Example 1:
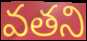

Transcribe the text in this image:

వతని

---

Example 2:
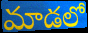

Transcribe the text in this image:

మాడలో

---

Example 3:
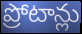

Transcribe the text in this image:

ప్రోటాన్లు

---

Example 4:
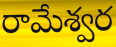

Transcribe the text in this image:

రామేశ్వర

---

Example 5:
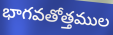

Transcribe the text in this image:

భాగవతోత్తముల